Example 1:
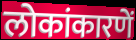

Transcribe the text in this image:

लोकांकारणें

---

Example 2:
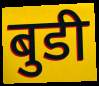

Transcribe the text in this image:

बुडी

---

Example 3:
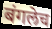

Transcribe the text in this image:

बंगलेच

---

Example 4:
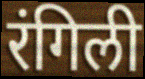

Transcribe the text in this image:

रंगिली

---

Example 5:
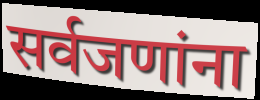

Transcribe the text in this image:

सर्वजणांना